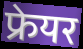
फ्रेयर